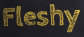
Fleshy